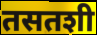
तसतशी